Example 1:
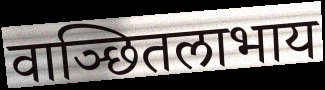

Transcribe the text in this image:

वाञ्छितलाभाय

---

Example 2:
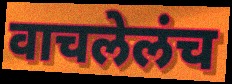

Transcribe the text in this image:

वाचलेलंच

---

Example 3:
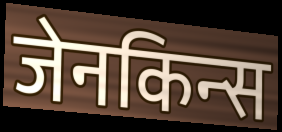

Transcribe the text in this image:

जेनकिन्स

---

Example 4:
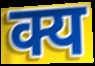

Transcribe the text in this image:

क्य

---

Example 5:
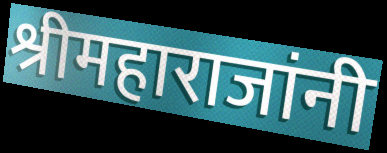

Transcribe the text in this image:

श्रीमहाराजांनी